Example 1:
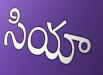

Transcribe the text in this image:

సియా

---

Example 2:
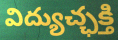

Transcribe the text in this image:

విద్యుచ్ఛక్తి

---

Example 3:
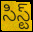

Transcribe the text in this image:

సిస్ట్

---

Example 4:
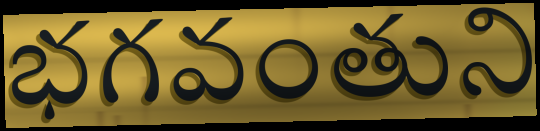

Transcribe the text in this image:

భగవంతుని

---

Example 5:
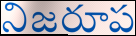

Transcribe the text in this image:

నిజరూప